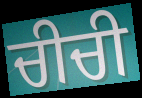
ਚੀਚੀ